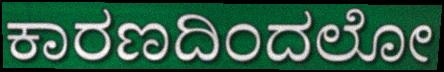
ಕಾರಣದಿಂದಲೋ